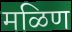
मळिण